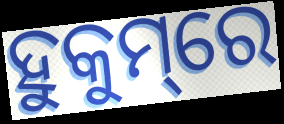
ହୁକୁମ୍‌ରେ